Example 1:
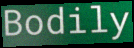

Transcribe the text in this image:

Bodily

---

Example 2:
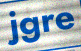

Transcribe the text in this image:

jgre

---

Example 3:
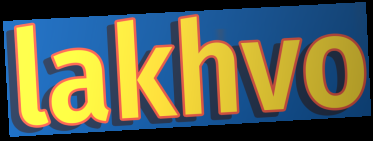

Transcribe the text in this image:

lakhvo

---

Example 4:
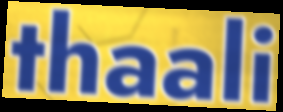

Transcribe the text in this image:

thaali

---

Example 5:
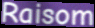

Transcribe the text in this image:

Raisom